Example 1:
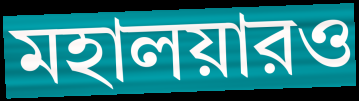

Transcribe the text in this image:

মহালয়ারও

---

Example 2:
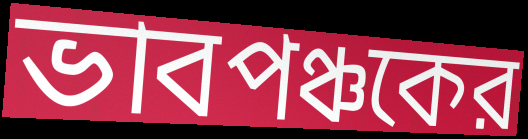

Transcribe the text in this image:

ভাবপঞ্চকের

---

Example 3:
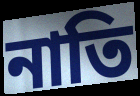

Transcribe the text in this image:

নাতি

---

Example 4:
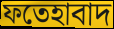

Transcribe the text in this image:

ফতেহাবাদ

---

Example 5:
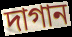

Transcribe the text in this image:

দাগান